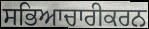
ਸਭਿਆਚਾਰੀਕਰਨ